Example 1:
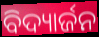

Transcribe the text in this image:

ବିଦ୍ୟାର୍ଜନ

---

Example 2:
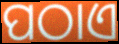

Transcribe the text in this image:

ପଠାଏ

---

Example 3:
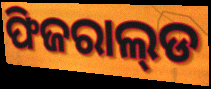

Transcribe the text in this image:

ଫିଜରାଲ୍‌ଡ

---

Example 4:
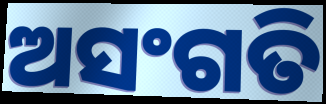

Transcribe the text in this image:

ଅସଂଗତି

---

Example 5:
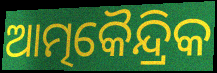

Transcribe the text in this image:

ଆତ୍ମକୈନ୍ଦ୍ରିକ